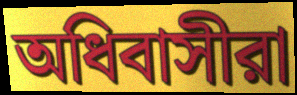
অধিবাসীরা